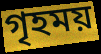
গৃহময়